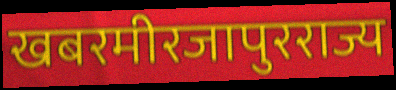
खबरमीरजापुरराज्य